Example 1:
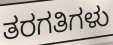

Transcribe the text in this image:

ತರಗತಿಗಳು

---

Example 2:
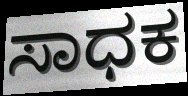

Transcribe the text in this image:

ಸಾಧಕ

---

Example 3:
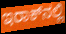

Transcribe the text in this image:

ಇರಾಕ್‌ನಲ್ಲಿ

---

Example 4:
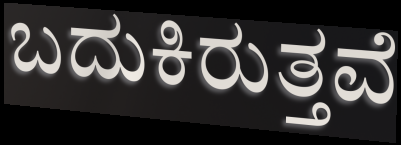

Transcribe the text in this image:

ಬದುಕಿರುತ್ತವೆ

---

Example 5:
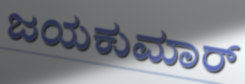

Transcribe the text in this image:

ಜಯಕುಮಾರ್